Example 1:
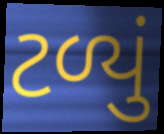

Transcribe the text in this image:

ટળ્યું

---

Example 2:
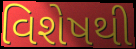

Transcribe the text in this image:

વિશેષથી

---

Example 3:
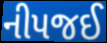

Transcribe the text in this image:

નીપજઈ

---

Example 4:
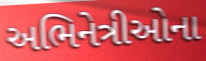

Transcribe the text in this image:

અભિનેત્રીઓના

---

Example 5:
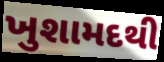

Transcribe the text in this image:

ખુશામદથી